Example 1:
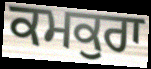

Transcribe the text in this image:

ਕਮਕੁਰਾ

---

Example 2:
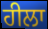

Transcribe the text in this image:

ਹੀਲਾ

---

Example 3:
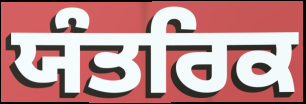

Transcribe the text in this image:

ਯੰਤਰਿਕ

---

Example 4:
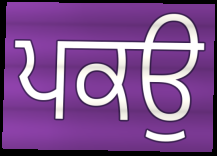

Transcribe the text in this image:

ਪਕਉ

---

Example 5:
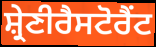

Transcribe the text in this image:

ਸ਼੍ਰੇਣੀਰੈਸਟੋਰੈਂਟ